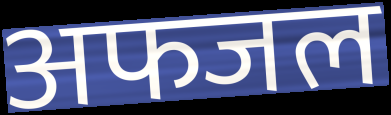
अफजल